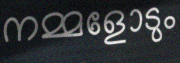
നമ്മളോടും